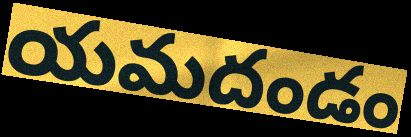
యమదండం